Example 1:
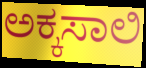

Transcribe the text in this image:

ಅಕ್ಕಸಾಲಿ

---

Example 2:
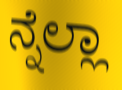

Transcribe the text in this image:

ನ್ನೆಲ್ಲಾ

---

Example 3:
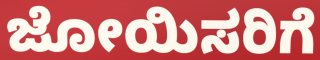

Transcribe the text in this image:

ಜೋಯಿಸರಿಗೆ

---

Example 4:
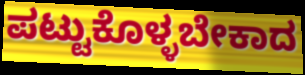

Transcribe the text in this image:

ಪಟ್ಟುಕೊಳ್ಳಬೇಕಾದ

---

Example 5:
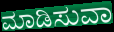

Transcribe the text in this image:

ಮಾಡಿಸುವಾ